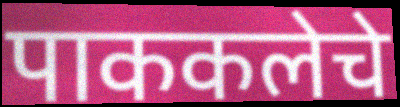
पाककलेचे